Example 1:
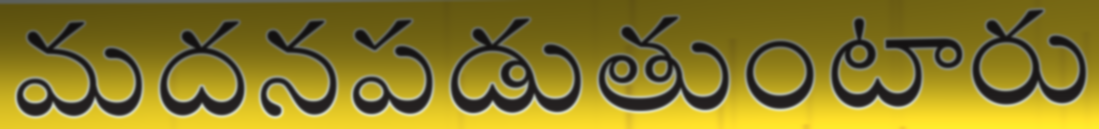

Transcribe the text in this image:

మదనపడుతుంటారు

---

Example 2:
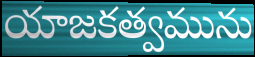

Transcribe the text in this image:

యాజకత్వమును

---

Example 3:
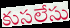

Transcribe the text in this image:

కుసలేసు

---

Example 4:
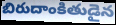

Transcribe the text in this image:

బిరుదాంకితుడైన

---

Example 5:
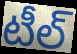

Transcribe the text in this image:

టీల్